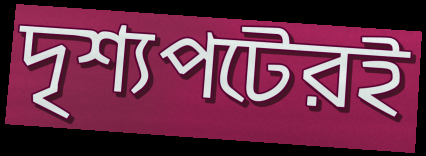
দৃশ্যপটেরই